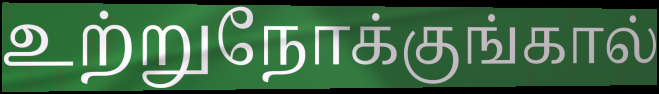
உற்றுநோக்குங்கால்